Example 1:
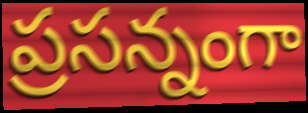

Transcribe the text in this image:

ప్రసన్నంగా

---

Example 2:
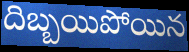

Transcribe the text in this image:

దిబ్బయిపోయిన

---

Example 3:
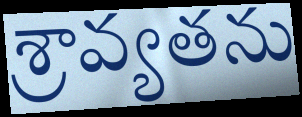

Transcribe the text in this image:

శ్రావ్యతను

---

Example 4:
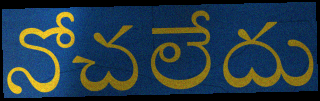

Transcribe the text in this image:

నోచలేదు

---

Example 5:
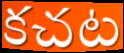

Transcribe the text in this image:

కచట